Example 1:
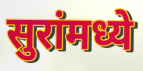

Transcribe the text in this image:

सुरांमध्ये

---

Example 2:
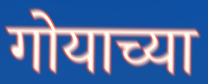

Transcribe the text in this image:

गोयाच्या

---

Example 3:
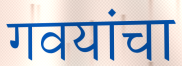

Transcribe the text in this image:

गवयांचा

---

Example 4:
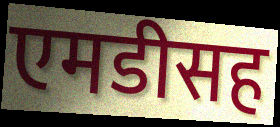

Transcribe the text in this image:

एमडीसह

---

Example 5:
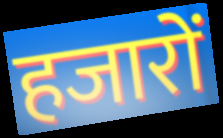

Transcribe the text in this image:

हजारों